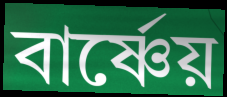
বার্ষ্ণেয়